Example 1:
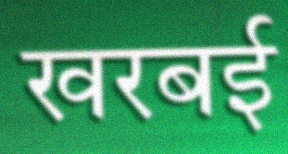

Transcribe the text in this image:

खरबई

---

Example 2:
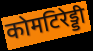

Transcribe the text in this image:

कोमटिरेड्डी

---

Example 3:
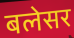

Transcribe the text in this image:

बलेसर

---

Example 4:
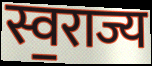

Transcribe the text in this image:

स्व॒राज्य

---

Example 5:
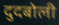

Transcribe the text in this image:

दुदबोली